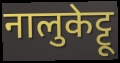
नालुकेट्टू